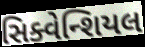
સિક્વેન્શિયલ